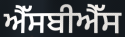
ਐੱਸਬੀਐੱਸ